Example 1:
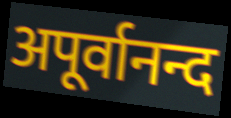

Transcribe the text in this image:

अपूर्वानन्द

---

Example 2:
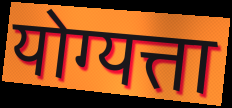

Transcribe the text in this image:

योग्यत्ता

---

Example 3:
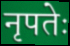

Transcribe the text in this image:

नृपतेः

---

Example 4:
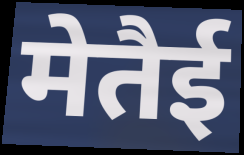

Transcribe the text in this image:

मेतैई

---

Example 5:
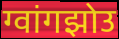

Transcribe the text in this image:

ग्वांगझोउ